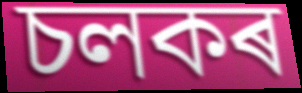
চলকৰ